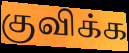
குவிக்க